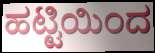
ಹಟ್ಟಿಯಿಂದ